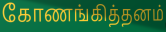
கோணங்கித்தனம்